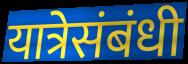
यात्रेसंबंधी